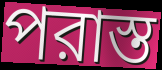
পরাস্ত